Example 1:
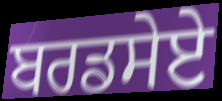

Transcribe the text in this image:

ਬਰਡਸੇਏ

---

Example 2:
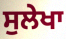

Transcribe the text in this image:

ਸੁਲੇਖਾ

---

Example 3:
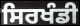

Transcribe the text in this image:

ਸਿਰਖੰਡੀ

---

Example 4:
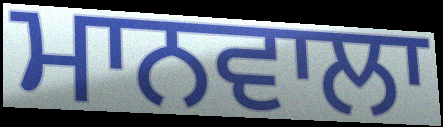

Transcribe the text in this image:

ਮਾਨਵਾਲਾ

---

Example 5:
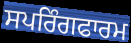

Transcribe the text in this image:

ਸਪਰਿੰਗਫਾਰਮ